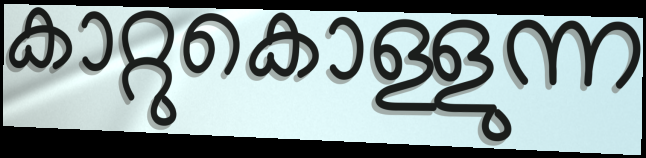
കാറ്റുകൊള്ളുന്ന